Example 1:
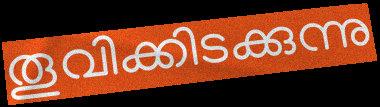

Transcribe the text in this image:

തൂവിക്കിടക്കുന്നു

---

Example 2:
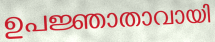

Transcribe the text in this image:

ഉപജ്ഞാതാവായി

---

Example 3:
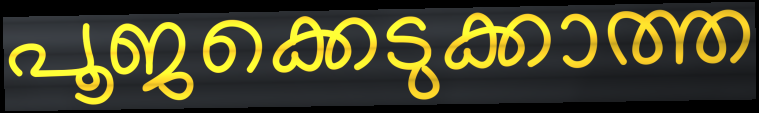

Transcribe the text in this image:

പൂജക്കെടുക്കാത്ത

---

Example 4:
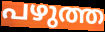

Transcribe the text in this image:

പഴുത്ത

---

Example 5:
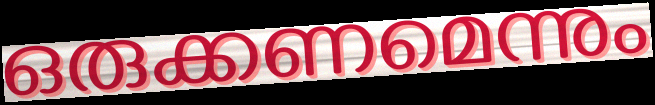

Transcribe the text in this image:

ഒരുക്കണമെന്നും